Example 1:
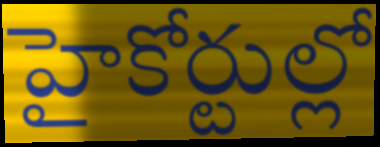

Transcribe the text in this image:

హైకోర్టుల్లో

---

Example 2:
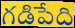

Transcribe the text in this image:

గడిపేది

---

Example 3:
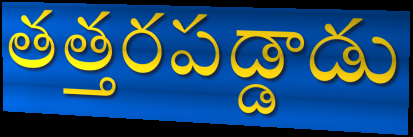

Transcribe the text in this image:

తత్తరపడ్డాడు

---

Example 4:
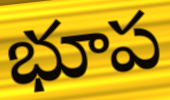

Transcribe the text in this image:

భూప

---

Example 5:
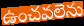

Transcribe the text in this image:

ఉంచవలెను